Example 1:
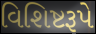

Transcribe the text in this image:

વિશિષ્ટરૂપે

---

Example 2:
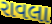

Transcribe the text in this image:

રાવલા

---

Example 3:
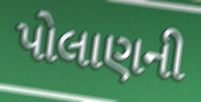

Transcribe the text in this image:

પોલાણની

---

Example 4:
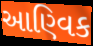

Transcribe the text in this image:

આણ્વિક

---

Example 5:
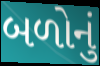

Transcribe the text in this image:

બળોનું